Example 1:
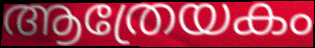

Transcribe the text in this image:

ആത്രേയകം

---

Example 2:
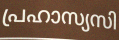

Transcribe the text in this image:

പ്രഹാസ്യസി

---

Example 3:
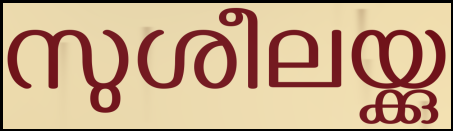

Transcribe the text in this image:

സുശീലയ്ക്കു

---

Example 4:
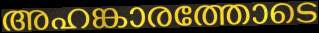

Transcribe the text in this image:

അഹങ്കാരത്തോടെ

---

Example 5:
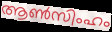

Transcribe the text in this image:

ആൺസിംഹം